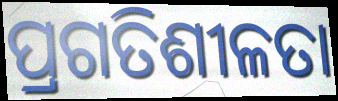
ପ୍ରଗତିଶୀଳତା